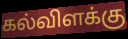
கல்விளக்கு